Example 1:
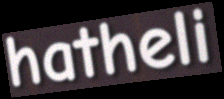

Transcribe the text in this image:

hatheli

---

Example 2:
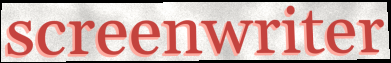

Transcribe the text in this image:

screenwriter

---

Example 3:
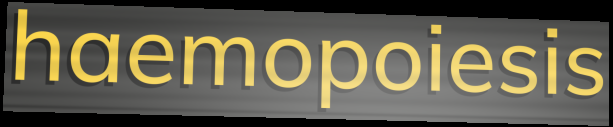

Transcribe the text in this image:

haemopoiesis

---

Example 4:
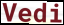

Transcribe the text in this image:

Vedi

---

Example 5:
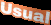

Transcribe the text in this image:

Usual